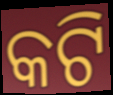
କଟି